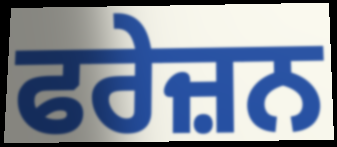
ਫਰੇਜ਼ਨ